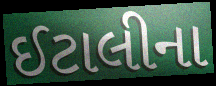
ઈટાલીના